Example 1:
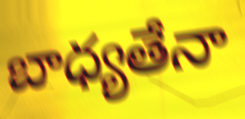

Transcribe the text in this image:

బాధ్యతేనా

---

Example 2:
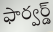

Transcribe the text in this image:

ఫార్వర్డ్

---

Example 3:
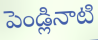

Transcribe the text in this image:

పెండ్లినాటి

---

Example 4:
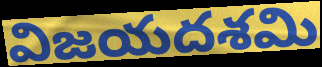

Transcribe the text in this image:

విజయదశమి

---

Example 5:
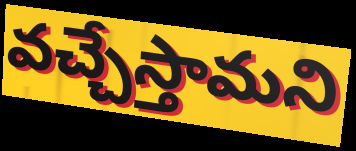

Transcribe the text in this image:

వచ్చేస్తామని